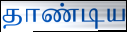
தாண்டிய